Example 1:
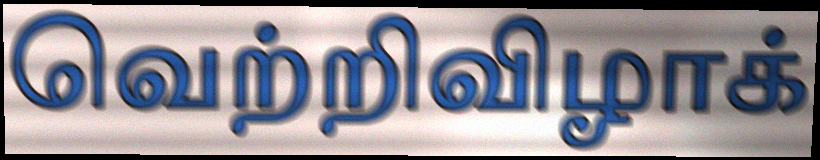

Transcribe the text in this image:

வெற்றிவிழாக்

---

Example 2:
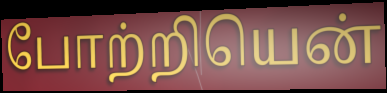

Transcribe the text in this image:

போற்றியென்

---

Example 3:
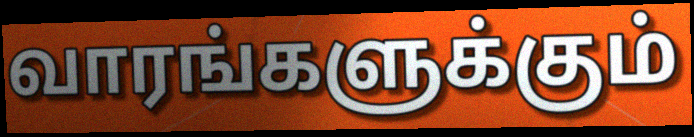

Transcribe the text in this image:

வாரங்களுக்கும்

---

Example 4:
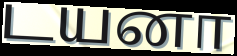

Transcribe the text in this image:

டயனா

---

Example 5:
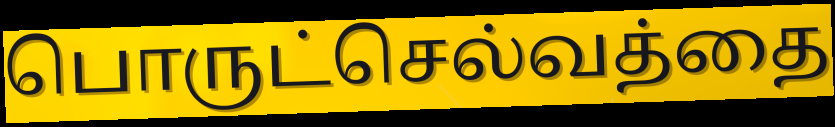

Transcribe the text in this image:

பொருட்செல்வத்தை